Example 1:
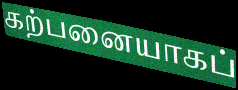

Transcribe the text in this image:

கற்பனையாகப்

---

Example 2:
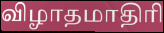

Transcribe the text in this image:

விழாதமாதிரி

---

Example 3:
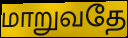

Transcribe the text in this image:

மாறுவதே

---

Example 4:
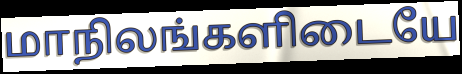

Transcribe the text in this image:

மாநிலங்களிடையே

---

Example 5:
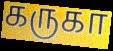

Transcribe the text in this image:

கருகா